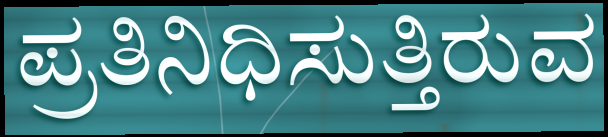
ಪ್ರತಿನಿಧಿಸುತ್ತಿರುವ